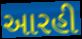
આરહી